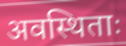
अवस्थिताः